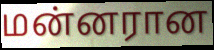
மன்னரான